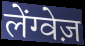
लेंग्वेज़